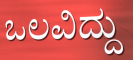
ಒಲವಿದ್ದು